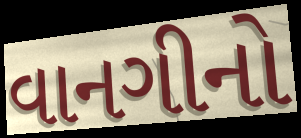
વાનગીનો